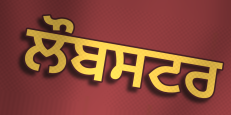
ਲੌਬਸਟਰ